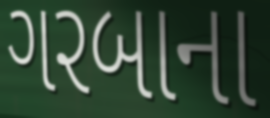
ગરબાના